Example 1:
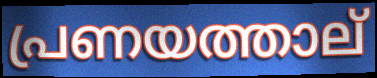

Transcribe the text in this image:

പ്രണയത്താല്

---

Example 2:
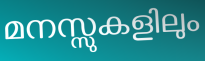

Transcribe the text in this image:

മനസ്സുകളിലും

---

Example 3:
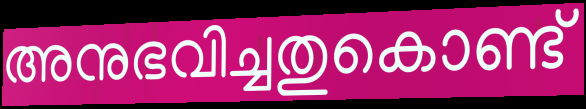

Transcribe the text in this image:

അനുഭവിച്ചതുകൊണ്ട്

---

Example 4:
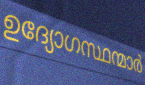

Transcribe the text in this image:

ഉദ്യോഗസ്ഥന്മാർ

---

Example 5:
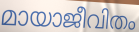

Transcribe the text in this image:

മായാജീവിതം